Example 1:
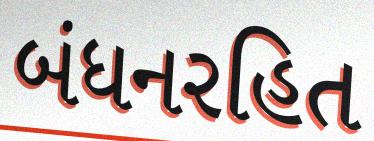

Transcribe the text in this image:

બંધનરહિત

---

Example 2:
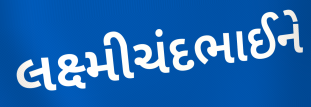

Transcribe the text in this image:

લક્ષ્મીચંદભાઈને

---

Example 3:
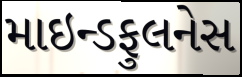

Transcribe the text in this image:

માઇન્ડફુલનેસ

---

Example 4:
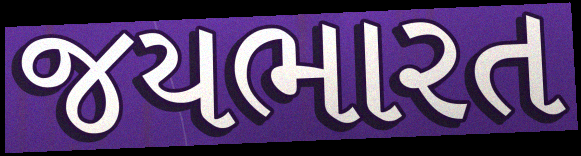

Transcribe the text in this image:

જયભારત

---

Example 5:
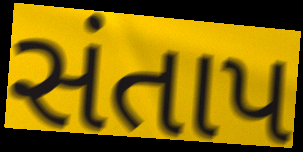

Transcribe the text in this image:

સંતાપ